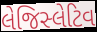
લેજિસ્લેટિવ